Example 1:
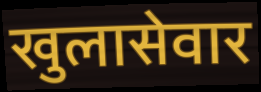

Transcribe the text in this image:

खुलासेवार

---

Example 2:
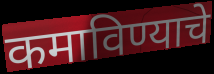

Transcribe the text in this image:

कमाविण्याचे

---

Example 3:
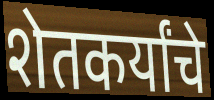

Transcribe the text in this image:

शेतकर्यांचे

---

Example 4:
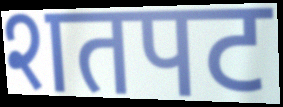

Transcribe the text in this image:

शतपट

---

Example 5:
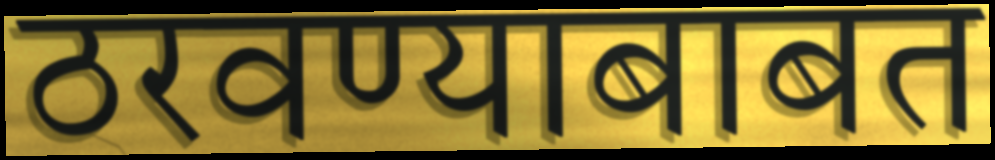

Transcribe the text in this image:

ठरवण्याबाबत